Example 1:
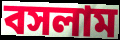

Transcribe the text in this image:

বসলাম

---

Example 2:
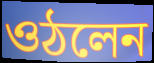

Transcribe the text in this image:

ওঠলেন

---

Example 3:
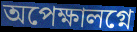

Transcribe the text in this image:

অপেক্ষালগ্নে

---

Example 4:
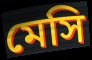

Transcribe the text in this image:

মেসি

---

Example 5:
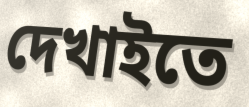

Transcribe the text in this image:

দেখাইতে